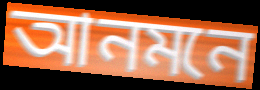
আনমনে